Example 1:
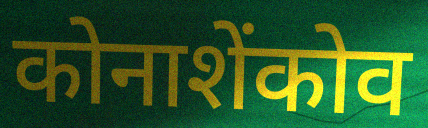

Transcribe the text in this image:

कोनाशेंकोव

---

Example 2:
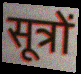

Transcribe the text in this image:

सूत्रों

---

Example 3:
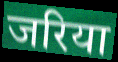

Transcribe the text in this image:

जरिया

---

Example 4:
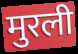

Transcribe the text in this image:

मुरली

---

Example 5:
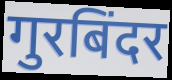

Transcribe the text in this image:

गुरबिंदर